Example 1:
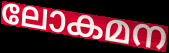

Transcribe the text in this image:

ലോകമന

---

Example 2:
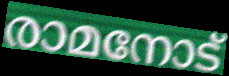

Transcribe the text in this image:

രാമനോട്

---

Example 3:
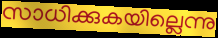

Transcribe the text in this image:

സാധിക്കുകയില്ലെന്നു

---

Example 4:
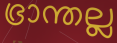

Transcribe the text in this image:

ഭ്രാന്തല്ല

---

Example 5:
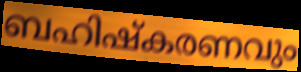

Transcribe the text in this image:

ബഹിഷ്കരണവും